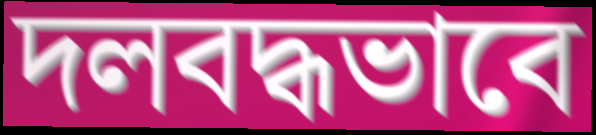
দলবদ্ধভাবে